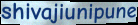
shivajiunipune